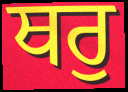
ਥਰੁ